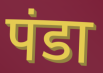
पंडा